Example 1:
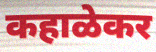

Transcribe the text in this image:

कहाळेकर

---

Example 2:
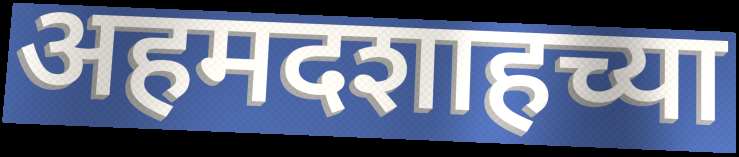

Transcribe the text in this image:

अहमदशाहच्या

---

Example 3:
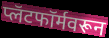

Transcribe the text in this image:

प्लॅटफॉर्मवरून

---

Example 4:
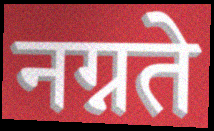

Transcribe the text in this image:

नग्नते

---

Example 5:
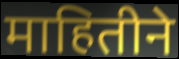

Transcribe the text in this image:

माहितीने